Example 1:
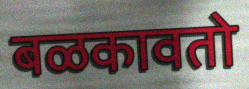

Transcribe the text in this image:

बळकावतो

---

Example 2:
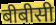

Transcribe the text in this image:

बीबीसी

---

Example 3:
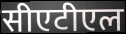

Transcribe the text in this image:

सीएटीएल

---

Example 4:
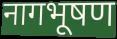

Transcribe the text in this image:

नागभूषण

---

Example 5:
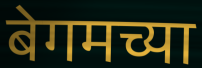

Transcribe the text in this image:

बेगमच्या